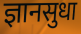
ज्ञानसुधा